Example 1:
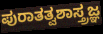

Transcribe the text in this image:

ಪುರಾತತ್ವಶಾಸ್ತ್ರಜ್ಞ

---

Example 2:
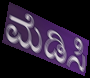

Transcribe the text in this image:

ಮೆಡಿಸಿ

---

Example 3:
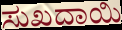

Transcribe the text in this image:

ಸುಖದಾಯಿ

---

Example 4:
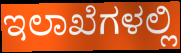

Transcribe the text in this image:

ಇಲಾಖೆಗಳಲ್ಲಿ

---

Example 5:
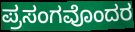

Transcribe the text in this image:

ಪ್ರಸಂಗವೊಂದರ